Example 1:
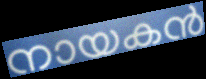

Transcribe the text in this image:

നായകൻ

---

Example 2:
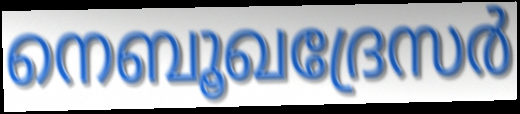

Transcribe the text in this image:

നെബൂഖദ്രേസർ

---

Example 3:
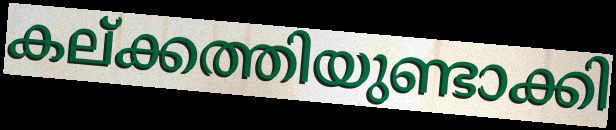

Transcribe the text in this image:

കല്ക്കത്തിയുണ്ടാക്കി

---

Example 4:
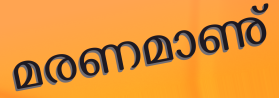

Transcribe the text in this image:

മരണമാണു്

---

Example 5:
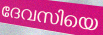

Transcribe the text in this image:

ദേവസിയെ